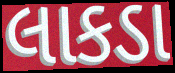
લાકડા